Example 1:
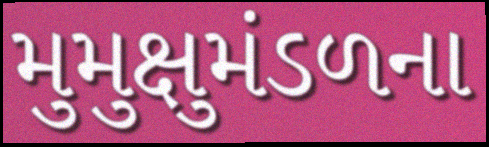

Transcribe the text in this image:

મુમુક્ષુમંડળના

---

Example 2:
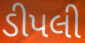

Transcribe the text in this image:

ડીપલી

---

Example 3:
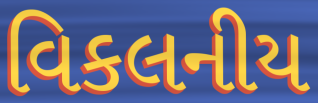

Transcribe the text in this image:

વિકલનીય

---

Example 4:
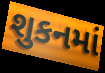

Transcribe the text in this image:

શુકનમાં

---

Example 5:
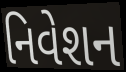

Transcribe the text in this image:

નિવેશન